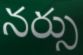
నర్సు